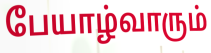
பேயாழ்வாரும்